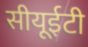
सीयूईटी